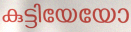
കുട്ടിയേയോ